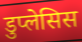
डुप्लेसिस